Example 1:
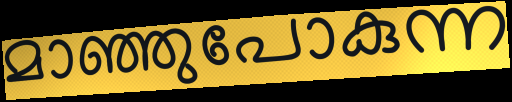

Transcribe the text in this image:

മാഞ്ഞുപോകുന്ന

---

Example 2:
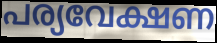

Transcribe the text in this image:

പര്യവേക്ഷണ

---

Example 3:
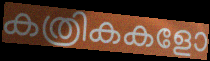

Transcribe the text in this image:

കത്രികകളോ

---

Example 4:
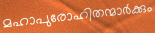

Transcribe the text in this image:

മഹാപുരോഹിതന്മാർക്കും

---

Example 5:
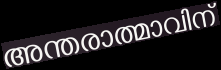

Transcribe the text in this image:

അന്തരാത്മാവിന്